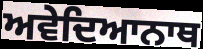
ਅਵੇਦਿਆਨਾਥ